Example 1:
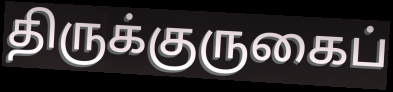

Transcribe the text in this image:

திருக்குருகைப்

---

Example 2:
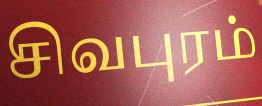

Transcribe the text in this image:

சிவபுரம்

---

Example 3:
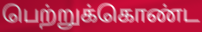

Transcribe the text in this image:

பெற்றுக்கொண்ட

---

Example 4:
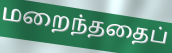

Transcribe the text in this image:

மறைந்ததைப்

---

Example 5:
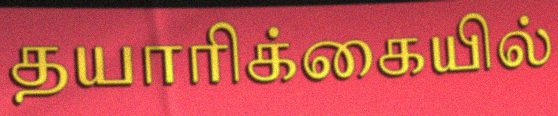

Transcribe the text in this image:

தயாரிக்கையில்